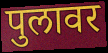
पुलावर